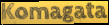
Komagata